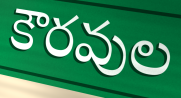
కౌరవుల